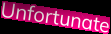
Unfortunate